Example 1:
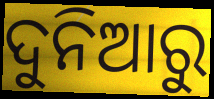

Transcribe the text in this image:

ଦୁନିଆରୁ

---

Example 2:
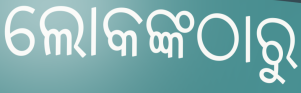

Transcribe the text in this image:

ଲୋକଙ୍କଠାରୁ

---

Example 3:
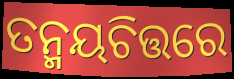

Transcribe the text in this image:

ତନ୍ମୟଚିତ୍ତରେ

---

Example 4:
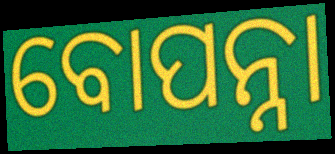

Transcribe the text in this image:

ବୋପନ୍ନା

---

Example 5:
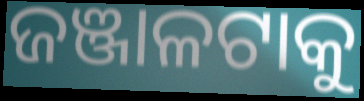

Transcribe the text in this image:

ଜଞ୍ଜାଳଟାକୁ